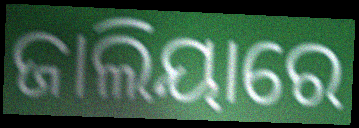
ଜାଲିୟାରେ